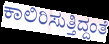
ಕಾಲಿರಿಸುತ್ತಿದ್ದಂತೆ